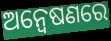
ଅନ୍ବେଷଣରେ